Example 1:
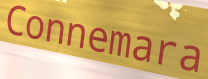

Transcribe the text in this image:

Connemara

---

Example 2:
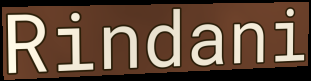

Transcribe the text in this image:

Rindani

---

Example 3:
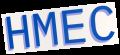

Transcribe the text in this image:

HMEC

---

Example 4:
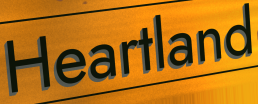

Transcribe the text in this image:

Heartland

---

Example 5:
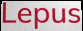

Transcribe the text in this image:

Lepus